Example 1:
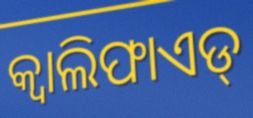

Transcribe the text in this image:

କ୍ୱାଲିଫାଏଡ୍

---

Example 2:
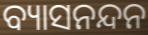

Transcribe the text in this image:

ବ୍ୟାସନନ୍ଦନ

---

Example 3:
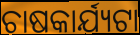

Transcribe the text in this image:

ଚାଷକାର୍ଯ୍ୟଟା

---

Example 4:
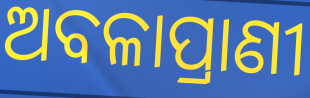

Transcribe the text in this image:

ଅବଳାପ୍ରାଣୀ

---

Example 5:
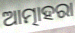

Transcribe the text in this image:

ଆତ୍ମାହରା